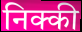
निक्‍की